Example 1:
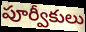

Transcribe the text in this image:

పూర్వీకులు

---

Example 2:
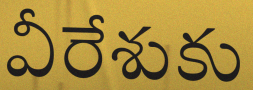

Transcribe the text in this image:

వీరేశుకు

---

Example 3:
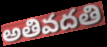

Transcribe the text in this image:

అతివదతి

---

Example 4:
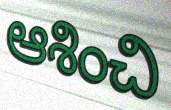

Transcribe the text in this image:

ఆశించి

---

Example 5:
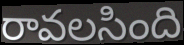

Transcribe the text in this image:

రావలసింది